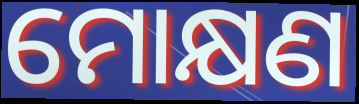
ମୋକ୍ଷଣ